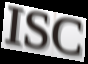
ISC